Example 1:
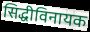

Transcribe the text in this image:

सिद्धीविनायक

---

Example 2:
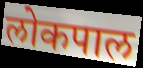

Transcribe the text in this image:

लोकपाल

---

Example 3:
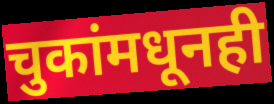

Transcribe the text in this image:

चुकांमधूनही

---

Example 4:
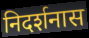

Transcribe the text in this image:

निदर्शनास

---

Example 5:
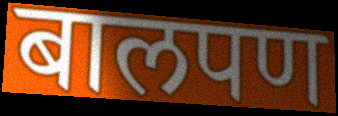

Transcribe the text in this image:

बालपण